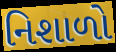
નિશાળો